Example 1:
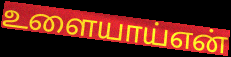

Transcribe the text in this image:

உளையாய்என்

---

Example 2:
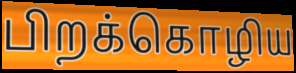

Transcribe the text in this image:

பிறக்கொழிய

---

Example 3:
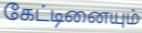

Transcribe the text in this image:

கேட்டினையும்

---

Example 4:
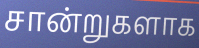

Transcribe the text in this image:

சான்றுகளாக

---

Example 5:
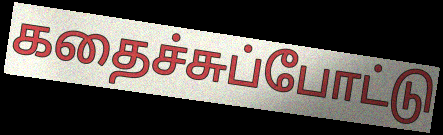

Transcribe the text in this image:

கதைச்சுப்போட்டு